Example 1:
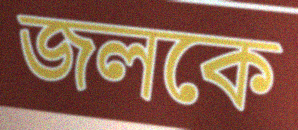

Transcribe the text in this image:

জলকে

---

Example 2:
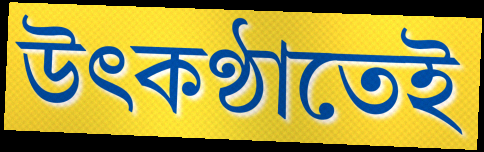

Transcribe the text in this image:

উৎকণ্ঠাতেই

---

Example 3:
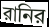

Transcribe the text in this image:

রানির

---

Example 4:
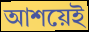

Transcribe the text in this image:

আশয়েই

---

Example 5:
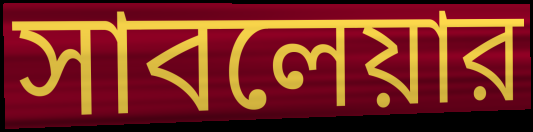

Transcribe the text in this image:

সাবলেয়ার